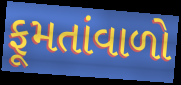
ફૂમતાંવાળો